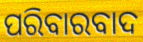
ପରିବାରବାଦ